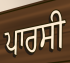
ਪਾਰਸੀ